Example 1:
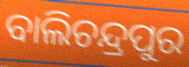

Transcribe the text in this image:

ବାଲିଚନ୍ଦ୍ରପୁର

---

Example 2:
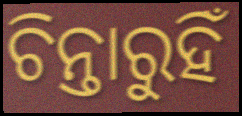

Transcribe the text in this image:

ଚିନ୍ତାରୁହିଁ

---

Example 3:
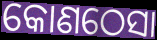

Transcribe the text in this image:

କୋଣଠେସା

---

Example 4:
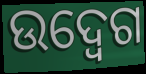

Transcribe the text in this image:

ଉଦ୍ବେଗ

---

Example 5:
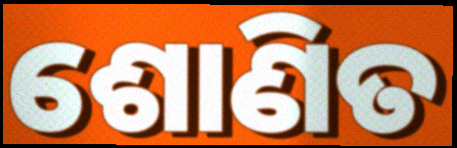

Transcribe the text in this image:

ଶୋଣିତ